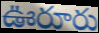
ఊరూరు